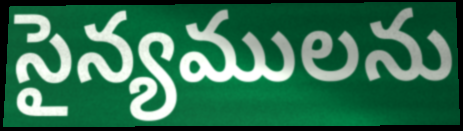
సైన్యములను